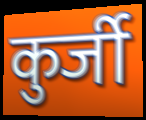
कुर्जी